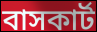
বাসকার্ট